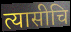
त्यासीचि